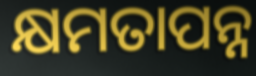
କ୍ଷମତାପନ୍ନ